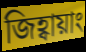
জিহ্বায়াং